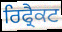
ਰਿਫ੍ਰੈਕਟ